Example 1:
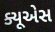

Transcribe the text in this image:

ક્યૂએસ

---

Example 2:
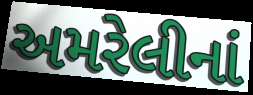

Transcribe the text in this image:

અમરેલીનાં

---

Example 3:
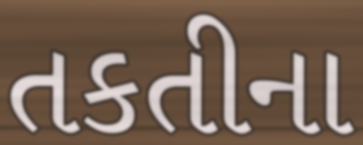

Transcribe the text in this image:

તકતીના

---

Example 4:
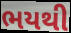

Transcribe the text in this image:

ભયથી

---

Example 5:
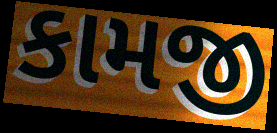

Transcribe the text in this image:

કામજી